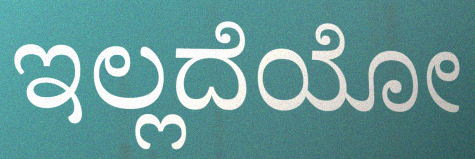
ಇಲ್ಲದೆಯೋ